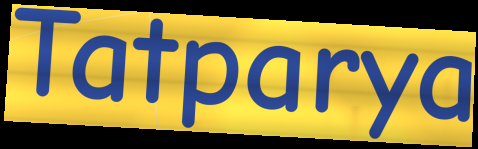
Tatparya